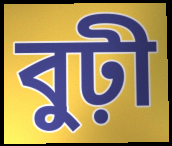
বুঢ়ী